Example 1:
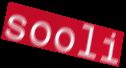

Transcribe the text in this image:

sooli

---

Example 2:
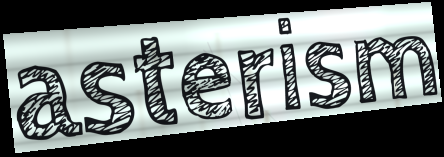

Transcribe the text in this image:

asterism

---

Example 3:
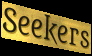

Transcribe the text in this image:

Seekers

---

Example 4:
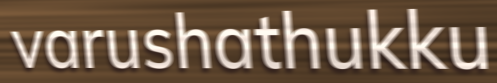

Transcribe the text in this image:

varushathukku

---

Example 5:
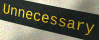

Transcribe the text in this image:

Unnecessary